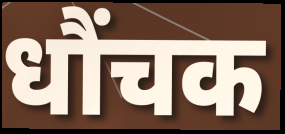
धौंचक